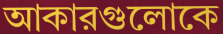
আকারগুলোকে